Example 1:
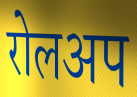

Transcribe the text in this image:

रोलअप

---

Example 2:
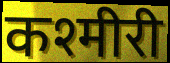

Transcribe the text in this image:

कश्मीरी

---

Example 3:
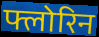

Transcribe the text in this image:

फ्लोरिन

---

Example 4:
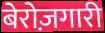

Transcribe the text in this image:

बेरोज़गारी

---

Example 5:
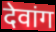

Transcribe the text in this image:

देवांग